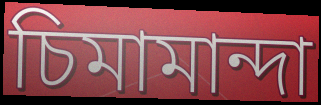
চিমামান্দা